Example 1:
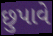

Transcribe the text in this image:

છુપાવે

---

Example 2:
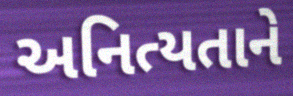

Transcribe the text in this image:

અનિત્યતાને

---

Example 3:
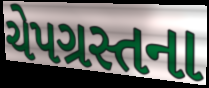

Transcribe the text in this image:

ચેપગ્રસ્તના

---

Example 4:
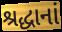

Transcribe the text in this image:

શ્રદ્ધાનાં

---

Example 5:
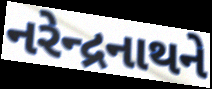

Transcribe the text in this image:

નરેન્દ્રનાથને